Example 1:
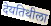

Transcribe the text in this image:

देयतिथीला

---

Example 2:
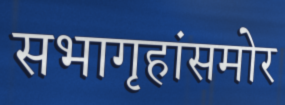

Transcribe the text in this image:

सभागृहांसमोर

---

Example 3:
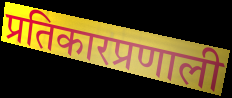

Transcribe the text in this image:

प्रतिकारप्रणाली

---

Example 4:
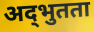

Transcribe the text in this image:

अद्‌भुतता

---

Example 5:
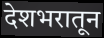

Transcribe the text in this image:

देशभरातून